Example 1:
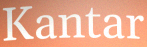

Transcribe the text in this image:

Kantar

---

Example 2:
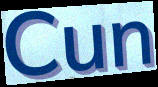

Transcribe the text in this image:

Cun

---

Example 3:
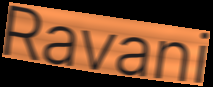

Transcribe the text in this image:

Ravani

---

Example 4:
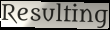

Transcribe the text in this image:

Resulting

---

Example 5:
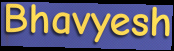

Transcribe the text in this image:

Bhavyesh